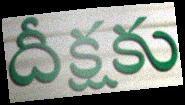
దీక్షకు